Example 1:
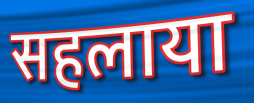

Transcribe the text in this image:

सहलाया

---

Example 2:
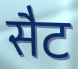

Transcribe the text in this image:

सैट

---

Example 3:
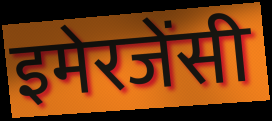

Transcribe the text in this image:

इमेरजेंसी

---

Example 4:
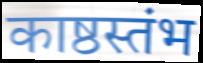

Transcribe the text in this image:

काष्ठस्तंभ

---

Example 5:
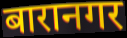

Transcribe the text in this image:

बारानगर